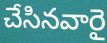
చేసినవారై